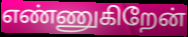
எண்ணுகிறேன்